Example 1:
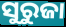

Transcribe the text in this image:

ସୁରୁଜା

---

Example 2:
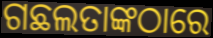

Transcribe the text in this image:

ଗଛଲତାଙ୍କଠାରେ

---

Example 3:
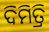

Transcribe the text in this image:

ଦିମିତ୍ରି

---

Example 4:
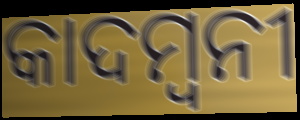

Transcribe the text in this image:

କାଦମ୍ୱନୀ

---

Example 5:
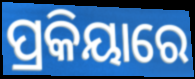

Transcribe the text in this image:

ପ୍ରକିୟାରେ